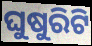
ଘୁଷୁରିଟି